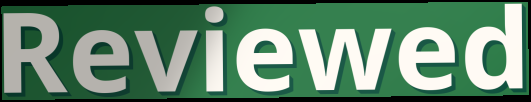
Reviewed